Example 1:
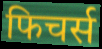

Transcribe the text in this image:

फिचर्स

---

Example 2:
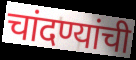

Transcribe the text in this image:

चांदण्यांची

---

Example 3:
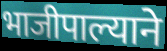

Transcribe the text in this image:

भाजीपाल्याने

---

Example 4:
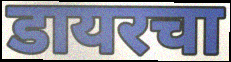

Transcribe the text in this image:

डायरचा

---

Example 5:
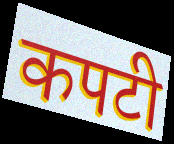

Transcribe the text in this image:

कपटी